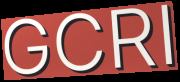
GCRI